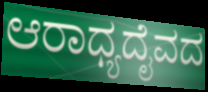
ಆರಾಧ್ಯದೈವದ